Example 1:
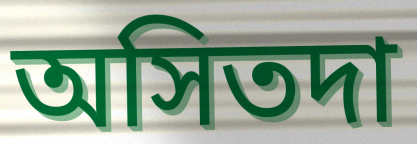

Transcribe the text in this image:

অসিতদা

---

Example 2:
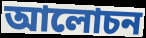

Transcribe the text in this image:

আলোচন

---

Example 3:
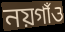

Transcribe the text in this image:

নয়গাঁও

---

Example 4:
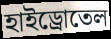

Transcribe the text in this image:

হাইড্রোতেল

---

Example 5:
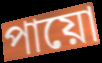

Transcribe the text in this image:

পায়ো